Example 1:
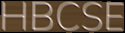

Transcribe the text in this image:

HBCSE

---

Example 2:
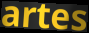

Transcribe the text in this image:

artes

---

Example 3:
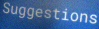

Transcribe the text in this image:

Suggestions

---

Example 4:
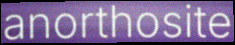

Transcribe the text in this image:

anorthosite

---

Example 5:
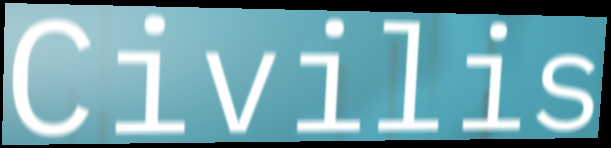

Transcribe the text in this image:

Civilis